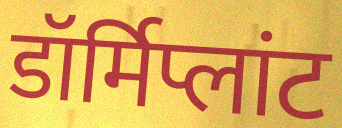
डॉर्मिप्लांट